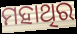
ମହାଥିର